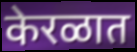
केरळात